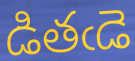
డితఁడె